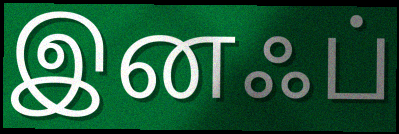
இனஃப்